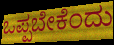
ಒಪ್ಪಬೇಕೆಂದು